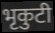
भृकुटी